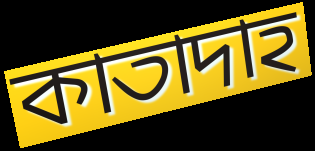
কাতাদাহ